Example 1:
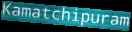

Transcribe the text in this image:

Kamatchipuram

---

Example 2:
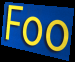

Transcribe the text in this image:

Foo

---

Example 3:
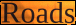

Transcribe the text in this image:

Roads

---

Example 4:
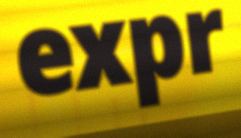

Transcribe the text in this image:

expr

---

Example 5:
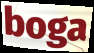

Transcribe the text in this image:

boga